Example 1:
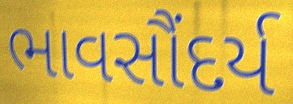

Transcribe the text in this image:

ભાવસૌંદર્ય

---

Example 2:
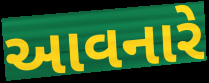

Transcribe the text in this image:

આવનારે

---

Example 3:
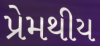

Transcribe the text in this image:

પ્રેમથીય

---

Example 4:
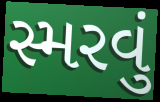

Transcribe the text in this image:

સ્મરવું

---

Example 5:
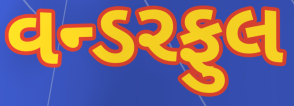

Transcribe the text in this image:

વન્ડરફુલ